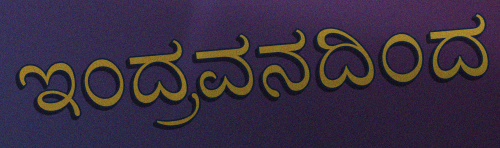
ಇಂದ್ರವನದಿಂದ